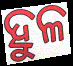
ହୁଳ